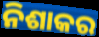
ନିଶାକର